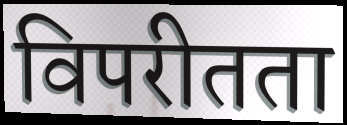
विपरीतता